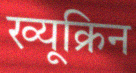
ख्यूक्रिन